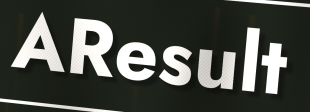
AResult